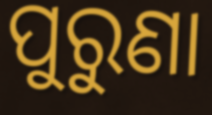
ପୁରୁଣା